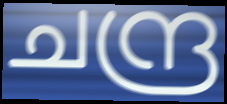
ചന്ദ്ര